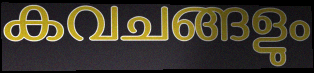
കവചങ്ങളും